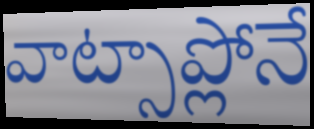
వాట్సాప్లోనే